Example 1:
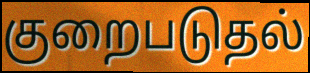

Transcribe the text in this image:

குறைபடுதல்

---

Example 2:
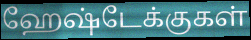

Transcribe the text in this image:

ஹேஷ்டேக்குகள்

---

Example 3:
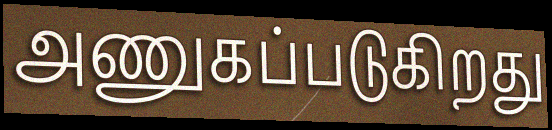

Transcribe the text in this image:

அணுகப்படுகிறது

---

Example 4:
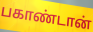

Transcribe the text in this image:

பகாண்டான்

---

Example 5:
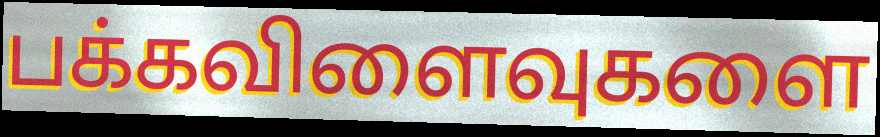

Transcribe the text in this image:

பக்கவிளைவுகளை